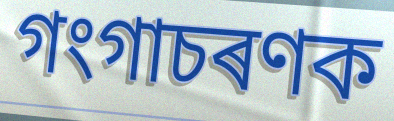
গংগাচৰণক